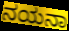
ನಯನಾ